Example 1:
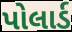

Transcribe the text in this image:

પોલાર્ડ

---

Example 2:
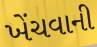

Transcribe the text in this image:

ખેંચવાની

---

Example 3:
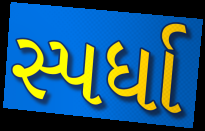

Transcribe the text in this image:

સ્પર્ધા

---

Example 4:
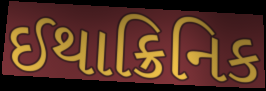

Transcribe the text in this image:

ઈથાક્રિનિક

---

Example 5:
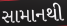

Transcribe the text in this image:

સામાનથી